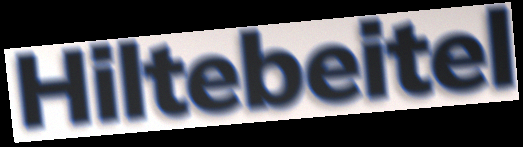
Hiltebeitel